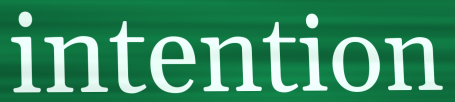
intention